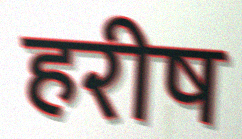
हरीष